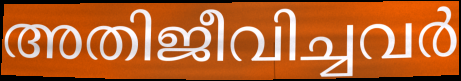
അതിജീവിച്ചവർ